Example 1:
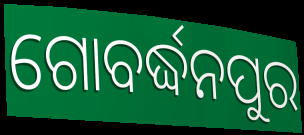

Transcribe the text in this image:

ଗୋବର୍ଦ୍ଧନପୁର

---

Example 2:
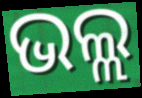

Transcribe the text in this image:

ଭଲ୍ଲ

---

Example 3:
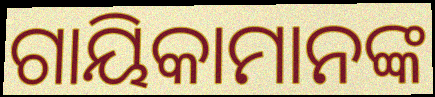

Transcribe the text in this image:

ଗାୟିକାମାନଙ୍କ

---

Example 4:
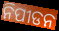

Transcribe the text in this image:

ନିପୀଡନ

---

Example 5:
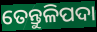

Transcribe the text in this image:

ତେନ୍ତୁଳିପଦା